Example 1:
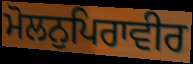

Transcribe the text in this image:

ਮੋਲਨੁਪਿਰਾਵੀਰ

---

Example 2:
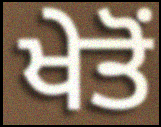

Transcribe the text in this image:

ਖੇਤੋਂ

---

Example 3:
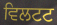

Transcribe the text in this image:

ਵਿਲਟਟ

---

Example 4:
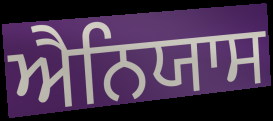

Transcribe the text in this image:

ਐਨਿਯਾਸ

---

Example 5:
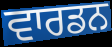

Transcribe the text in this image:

ਵਾਰਡਨ